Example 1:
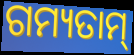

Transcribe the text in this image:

ଗମ୍ୟତାମ୍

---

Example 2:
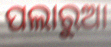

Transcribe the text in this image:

ପଲାରୁଆ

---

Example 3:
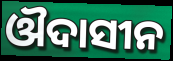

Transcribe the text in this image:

ଔଦାସୀନ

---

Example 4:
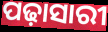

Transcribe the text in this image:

ପଢ଼ାସାରୀ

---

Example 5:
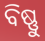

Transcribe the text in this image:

ବିଷ୍ଣୁ